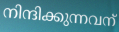
നിന്ദിക്കുന്നവന്